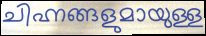
ചിഹ്നങ്ങളുമായുള്ള